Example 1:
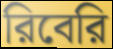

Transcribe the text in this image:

রিবেরি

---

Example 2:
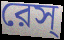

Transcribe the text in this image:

রেস্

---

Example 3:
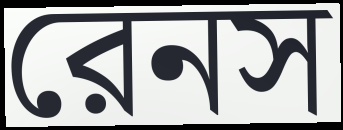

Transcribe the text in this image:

রেনস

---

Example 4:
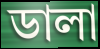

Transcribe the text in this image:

ডালা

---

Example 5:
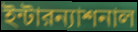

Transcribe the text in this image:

ইন্টারন্যাশনাল